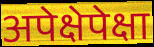
अपेक्षेपेक्षा